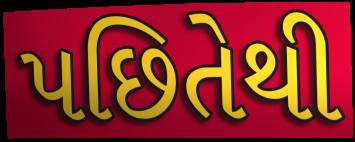
પછિતેથી